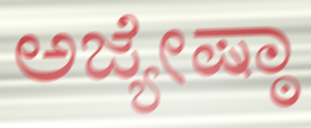
ಅಜ್ಯೇಷ್ಠಾ